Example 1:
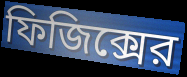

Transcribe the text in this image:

ফিজিক্সের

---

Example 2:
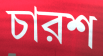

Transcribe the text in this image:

চারশ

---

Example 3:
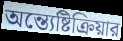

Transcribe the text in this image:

অন্ত্যেষ্টিক্রিয়ার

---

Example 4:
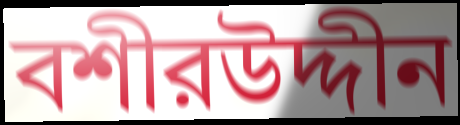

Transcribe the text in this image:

বশীরউদ্দীন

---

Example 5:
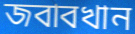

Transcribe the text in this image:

জবাবখান